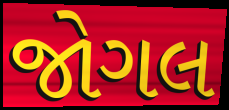
જોગલ